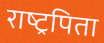
राष्ट्रपिता